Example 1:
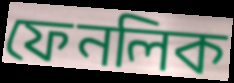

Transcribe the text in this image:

ফেনলিক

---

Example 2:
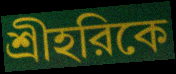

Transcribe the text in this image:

শ্রীহরিকে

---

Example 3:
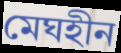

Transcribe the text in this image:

মেঘহীন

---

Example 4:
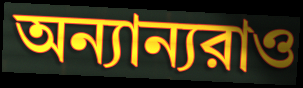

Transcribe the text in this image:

অন্যান্যরাও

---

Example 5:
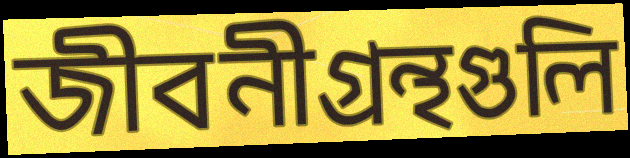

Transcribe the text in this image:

জীবনীগ্রন্থগুলি